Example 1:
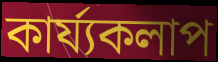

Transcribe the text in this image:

কার্য্যকলাপ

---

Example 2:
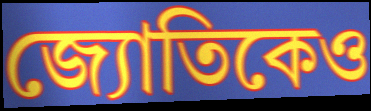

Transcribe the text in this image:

জ্যোতিকেও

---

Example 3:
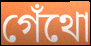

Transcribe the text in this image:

গেঁথো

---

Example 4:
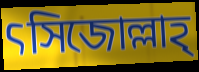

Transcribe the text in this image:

ৎসিজোল্লাহ্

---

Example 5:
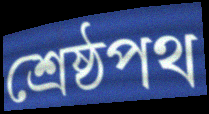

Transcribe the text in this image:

শ্রেষ্ঠপথ